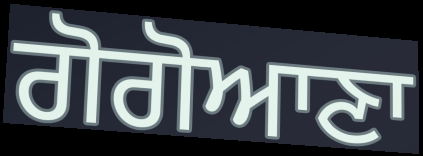
ਗੋਗੋਆਣਾ